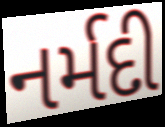
નર્મદી